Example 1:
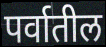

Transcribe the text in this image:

पर्वातील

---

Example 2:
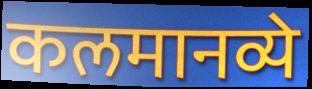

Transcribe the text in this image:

कलमानव्ये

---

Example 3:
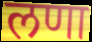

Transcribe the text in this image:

लणा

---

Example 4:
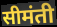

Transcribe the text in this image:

सीमंती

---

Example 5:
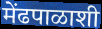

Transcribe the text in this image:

मेंढपाळाशी